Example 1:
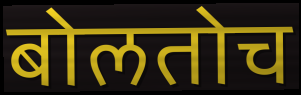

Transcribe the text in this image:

बोलतोच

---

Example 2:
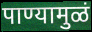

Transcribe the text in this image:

पाण्यामुळं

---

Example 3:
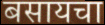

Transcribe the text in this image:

बसायचा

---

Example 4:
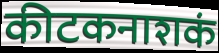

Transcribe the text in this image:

कीटकनाशकं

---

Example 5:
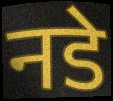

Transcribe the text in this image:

नडे